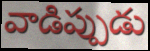
వాడిప్పుడు